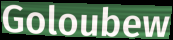
Goloubew